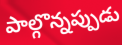
పాల్గొన్నప్పుడు